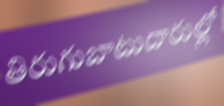
తిరుగుబాటుదారుల్లో